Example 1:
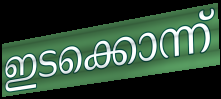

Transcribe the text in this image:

ഇടക്കൊന്ന്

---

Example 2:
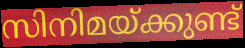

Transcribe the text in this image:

സിനിമയ്ക്കുണ്ട്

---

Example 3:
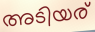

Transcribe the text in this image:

അടിയര്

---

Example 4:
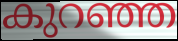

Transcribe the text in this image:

കുറഞ്ഞ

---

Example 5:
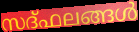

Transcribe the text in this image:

സദ്ഫലങ്ങൾ